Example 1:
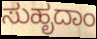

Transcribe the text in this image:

ಸುಹೃದಾಂ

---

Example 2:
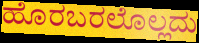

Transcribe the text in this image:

ಹೊರಬರಲೊಲ್ಲದು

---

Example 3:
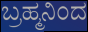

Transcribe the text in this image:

ಬ್ರಹ್ಮನಿಂದ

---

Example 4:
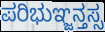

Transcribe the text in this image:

ಪರಿಭುಞ್ಜನ್ತಸ್ಸ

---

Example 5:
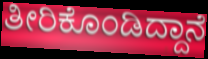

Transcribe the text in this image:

ತೀರಿಕೊಂಡಿದ್ದಾನೆ